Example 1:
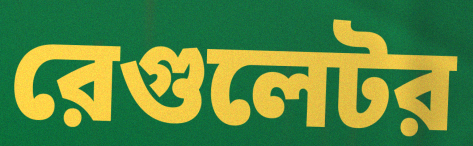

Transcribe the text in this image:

রেগুলেটর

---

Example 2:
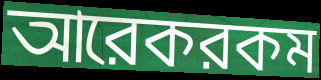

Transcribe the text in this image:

আরেকরকম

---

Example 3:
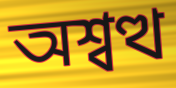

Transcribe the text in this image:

অশ্বত্থ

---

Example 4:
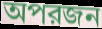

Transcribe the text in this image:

অপরজন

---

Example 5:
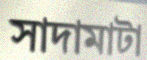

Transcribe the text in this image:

সাদামাটা